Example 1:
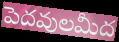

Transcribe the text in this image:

పెదవులమీద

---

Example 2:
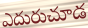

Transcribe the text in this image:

ఎదురుచూడ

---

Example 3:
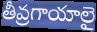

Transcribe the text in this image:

తీవ్రగాయాలై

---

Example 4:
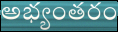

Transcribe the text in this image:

అభ్యంతరం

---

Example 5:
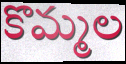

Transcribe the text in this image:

కొమ్మల